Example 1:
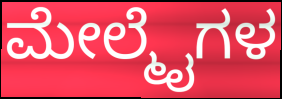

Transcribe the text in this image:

ಮೇಲ್ಮೈಗಳ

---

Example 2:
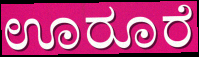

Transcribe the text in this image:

ಊರೂರೆ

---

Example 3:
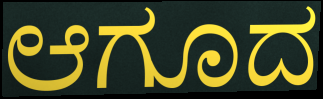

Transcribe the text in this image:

ಆಗೂದ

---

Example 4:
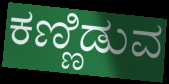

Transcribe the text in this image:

ಕಣ್ಣಿಡುವ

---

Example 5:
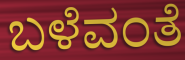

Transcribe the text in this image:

ಬಳೆವಂತೆ